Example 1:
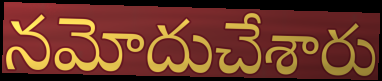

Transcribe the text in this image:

నమోదుచేశారు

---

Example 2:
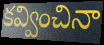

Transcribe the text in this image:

కవ్వించినా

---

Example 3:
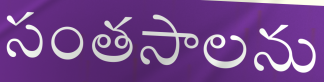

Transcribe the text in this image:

సంతసాలను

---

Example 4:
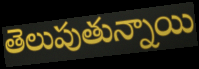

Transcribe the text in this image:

తెలుపుతున్నాయి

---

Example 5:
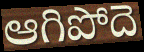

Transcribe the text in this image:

ఆగిపోదె